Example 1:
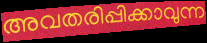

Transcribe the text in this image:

അവതരിപ്പിക്കാവുന്ന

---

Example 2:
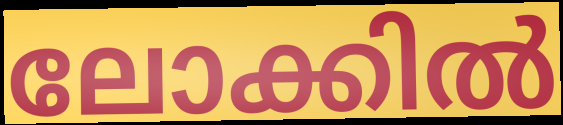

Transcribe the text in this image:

ലോക്കിൽ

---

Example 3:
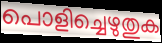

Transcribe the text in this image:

പൊളിച്ചെഴുതുക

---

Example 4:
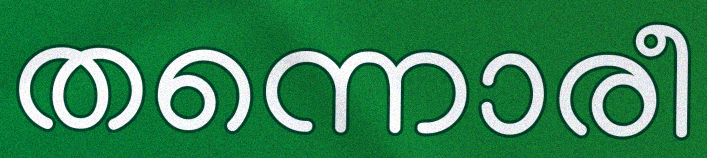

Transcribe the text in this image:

തന്നൊരീ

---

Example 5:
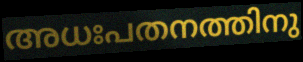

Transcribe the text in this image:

അധഃപതനത്തിനു